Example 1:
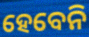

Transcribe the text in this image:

ହେବେନି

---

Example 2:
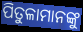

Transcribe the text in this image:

ପିତୁଳାମାନଙ୍କୁ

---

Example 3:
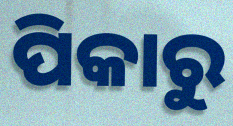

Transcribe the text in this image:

ପିକାରୁ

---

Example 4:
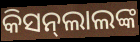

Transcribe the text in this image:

କିସନ୍‌ଲାଲଙ୍କ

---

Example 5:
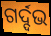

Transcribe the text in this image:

ଗର୍ଦ୍ଦଭ